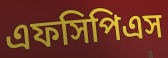
এফসিপিএস